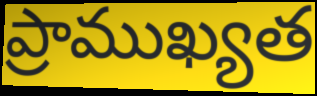
ప్రాముఖ్యత